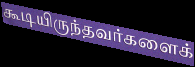
கூடியிருந்தவர்களைக்